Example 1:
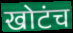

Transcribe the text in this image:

खोटंच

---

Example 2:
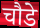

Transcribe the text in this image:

चौडे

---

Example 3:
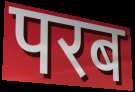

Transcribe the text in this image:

परब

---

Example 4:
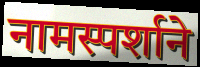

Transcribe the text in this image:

नामस्पर्शाने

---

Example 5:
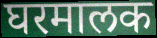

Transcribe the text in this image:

घरमालक